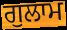
ਗੁਲਾਮ